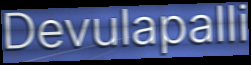
Devulapalli